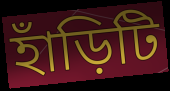
হাঁড়িটি